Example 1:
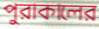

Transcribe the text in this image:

পুরাকালের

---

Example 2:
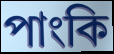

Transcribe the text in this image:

পাংকি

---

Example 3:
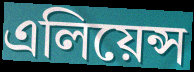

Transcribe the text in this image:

এলিয়েন্স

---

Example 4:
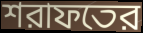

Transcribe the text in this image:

শরাফতের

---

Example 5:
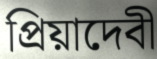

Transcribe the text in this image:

প্রিয়াদেবী